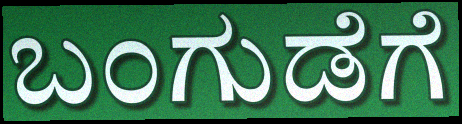
ಬಂಗುಡೆಗೆ